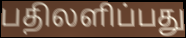
பதிலளிப்பது